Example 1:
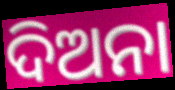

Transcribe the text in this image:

ଦିଅନା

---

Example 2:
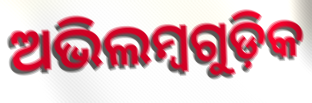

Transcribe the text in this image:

ଅଭିଲମ୍ବଗୁଡ଼ିକ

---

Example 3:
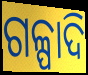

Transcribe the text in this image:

ଗଳ୍ପାଦି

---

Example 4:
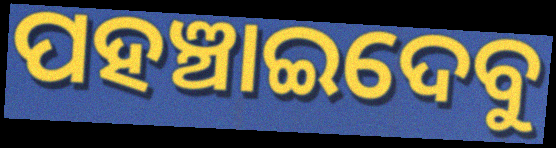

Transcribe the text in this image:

ପହଞ୍ଚାଇଦେବୁ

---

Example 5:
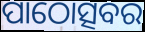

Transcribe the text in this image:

ପାଠୋତ୍ସବର